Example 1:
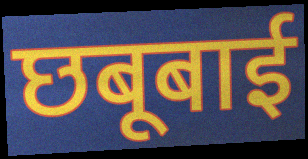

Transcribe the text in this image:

छबूबाई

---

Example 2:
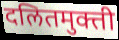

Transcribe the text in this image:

दलितमुक्ती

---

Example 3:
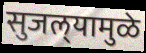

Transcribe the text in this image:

सुजल्यामुळे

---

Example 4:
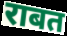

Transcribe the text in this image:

राबत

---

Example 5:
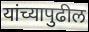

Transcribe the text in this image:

यांच्यापुढील